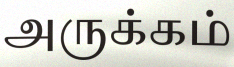
அருக்கம்